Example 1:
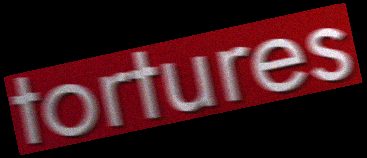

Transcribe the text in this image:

tortures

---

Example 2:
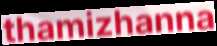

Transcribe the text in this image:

thamizhanna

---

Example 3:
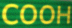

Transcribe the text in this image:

COOH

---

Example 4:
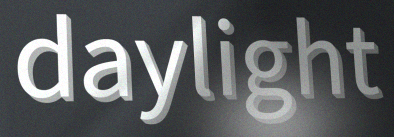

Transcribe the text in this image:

daylight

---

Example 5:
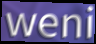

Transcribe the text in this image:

weni